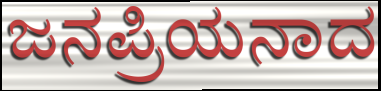
ಜನಪ್ರಿಯನಾದ